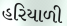
હરિયાળી